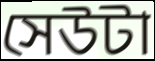
সেউটা